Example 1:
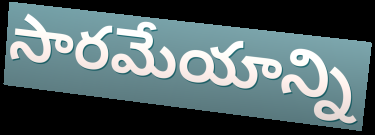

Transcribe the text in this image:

సారమేయాన్ని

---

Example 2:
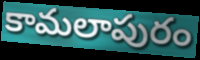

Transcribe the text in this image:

కామలాపురం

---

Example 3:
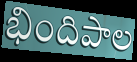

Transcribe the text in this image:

భిందిపాల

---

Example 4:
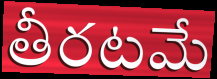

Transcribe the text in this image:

తీరటమే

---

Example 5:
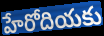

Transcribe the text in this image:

హేరోదియకు